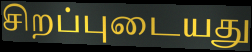
சிறப்புடையது